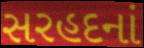
સરહદનાં